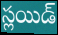
స్లయిడ్